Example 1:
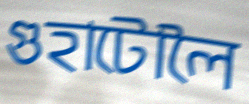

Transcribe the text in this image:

গুহাটোলৈ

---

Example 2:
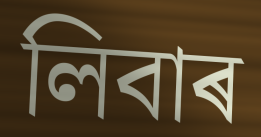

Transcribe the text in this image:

লিবাৰ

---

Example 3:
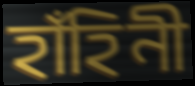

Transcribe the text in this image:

হাঁহিনী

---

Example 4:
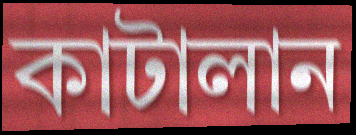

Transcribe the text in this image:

কাটালান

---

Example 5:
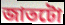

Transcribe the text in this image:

জাতটো